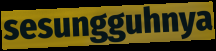
sesungguhnya